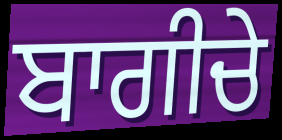
ਬਾਗੀਚੇ